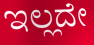
ಇಲ್ಲದೇ